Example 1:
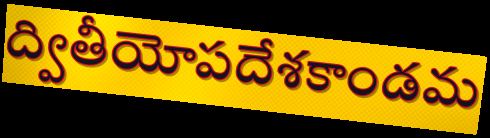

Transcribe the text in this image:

ద్వితీయోపదేశకాండమ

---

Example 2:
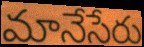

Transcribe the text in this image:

మానేసేరు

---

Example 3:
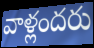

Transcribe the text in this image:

వాళ్లందరు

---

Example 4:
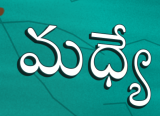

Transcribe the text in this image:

మధ్యే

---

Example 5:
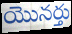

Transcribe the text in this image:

యొనర్తు